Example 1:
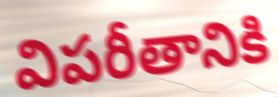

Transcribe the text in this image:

విపరీతానికి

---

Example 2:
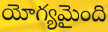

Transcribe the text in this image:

యోగ్యమైంది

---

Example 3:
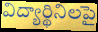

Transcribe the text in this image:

విద్యార్థినిలపై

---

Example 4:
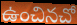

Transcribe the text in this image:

ఉంచినచో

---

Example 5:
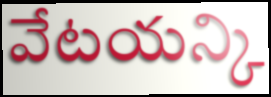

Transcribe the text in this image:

వేటయన్కి